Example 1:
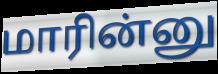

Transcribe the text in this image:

மாரின்னு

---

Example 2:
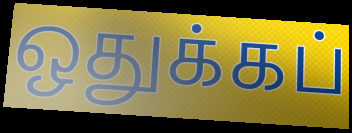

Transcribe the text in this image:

ஒதுக்கப்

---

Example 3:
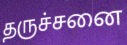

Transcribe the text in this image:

தருச்சனை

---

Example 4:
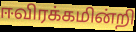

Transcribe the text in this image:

ஈவிரக்கமின்றி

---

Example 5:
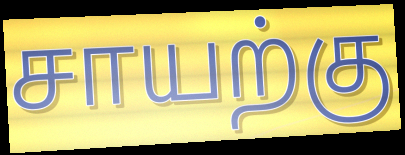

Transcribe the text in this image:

சாயற்கு